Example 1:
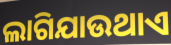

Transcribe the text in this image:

ଲାଗିଯାଉଥାଏ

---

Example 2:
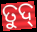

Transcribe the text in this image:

ତୁଦ୍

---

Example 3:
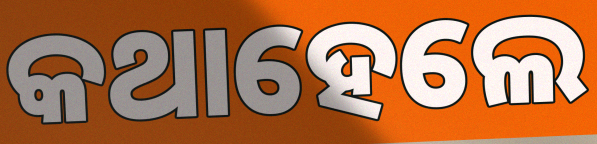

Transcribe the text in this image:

କଥାହେଲେ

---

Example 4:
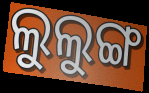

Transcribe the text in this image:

ଲୁଲୁଙ୍ଗ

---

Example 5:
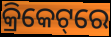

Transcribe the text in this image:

କ୍ରିକେଟ୍‌ରେ